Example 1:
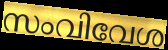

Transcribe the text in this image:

സംവിവേശ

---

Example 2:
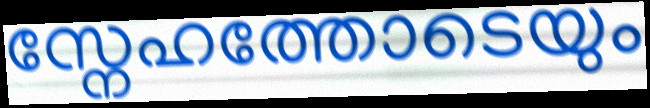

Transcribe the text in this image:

സ്നേഹത്തോടെയും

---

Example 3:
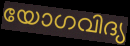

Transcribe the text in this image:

യോഗവിദ്യ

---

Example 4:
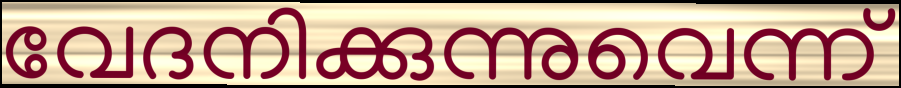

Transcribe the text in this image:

വേദനിക്കുന്നുവെന്ന്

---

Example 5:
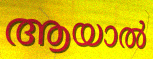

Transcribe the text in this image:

ആയാൽ